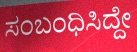
ಸಂಬಂಧಿಸಿದ್ದೇ